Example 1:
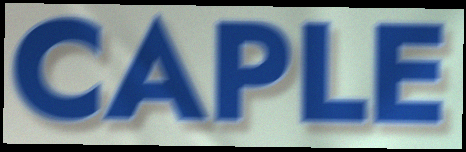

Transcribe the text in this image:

CAPLE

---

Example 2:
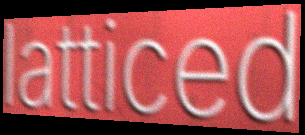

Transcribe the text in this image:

latticed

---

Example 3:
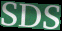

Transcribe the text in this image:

SDS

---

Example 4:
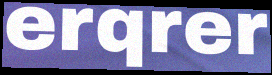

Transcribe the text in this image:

erqrer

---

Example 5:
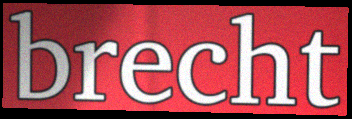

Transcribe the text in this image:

brecht